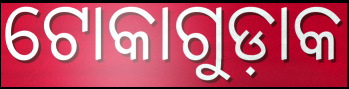
ଟୋକାଗୁଡ଼ାକ